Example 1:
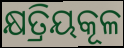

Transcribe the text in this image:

କ୍ଷତ୍ରିୟକୂଳ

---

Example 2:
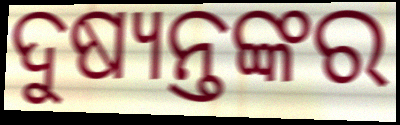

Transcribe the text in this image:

ଦୁଷ୍ୟନ୍ତଙ୍କର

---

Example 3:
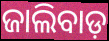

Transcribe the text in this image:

ଜାଲିବାଡ଼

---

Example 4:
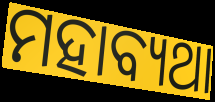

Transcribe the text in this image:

ମହାବ୍ୟଥା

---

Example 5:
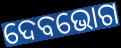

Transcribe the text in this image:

ଦେବଭୋଗ